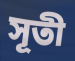
সূতী